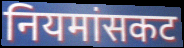
नियमांसकट